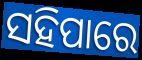
ସହିପାରେ